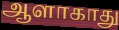
ஆளாகாது